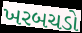
ખરબચડો